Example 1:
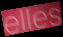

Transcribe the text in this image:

elles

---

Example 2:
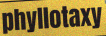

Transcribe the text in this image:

phyllotaxy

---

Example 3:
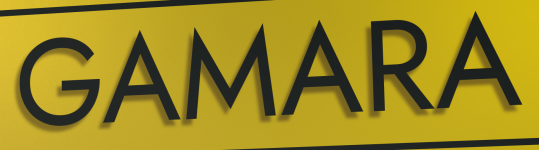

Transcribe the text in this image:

GAMARA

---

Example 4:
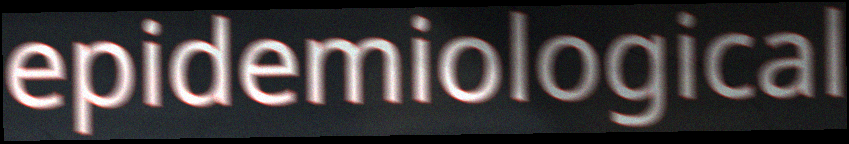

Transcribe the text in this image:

epidemiological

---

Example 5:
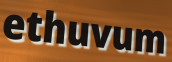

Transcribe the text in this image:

ethuvum